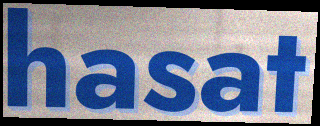
hasat